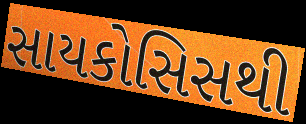
સાયકોસિસથી